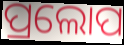
ପ୍ରଲୋପ